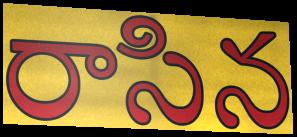
రాసిన